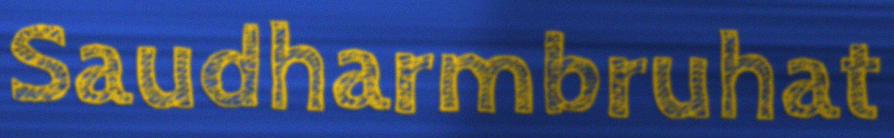
Saudharmbruhat